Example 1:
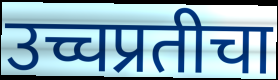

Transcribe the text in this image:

उच्चप्रतीचा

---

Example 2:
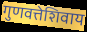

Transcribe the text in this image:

गुणवत्तेशिवाय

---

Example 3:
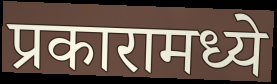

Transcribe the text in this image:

प्रकारामध्ये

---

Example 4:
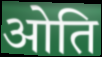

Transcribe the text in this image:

ओति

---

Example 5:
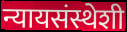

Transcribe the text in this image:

न्यायसंस्थेशी